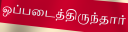
ஒப்படைத்திருந்தார்